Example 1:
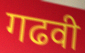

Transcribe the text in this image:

गढवी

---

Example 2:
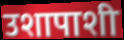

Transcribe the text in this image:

उशापाशी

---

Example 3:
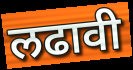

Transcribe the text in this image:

लढावी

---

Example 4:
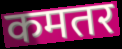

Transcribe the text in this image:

कमतर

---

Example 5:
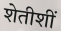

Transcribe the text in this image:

शेतीशीं